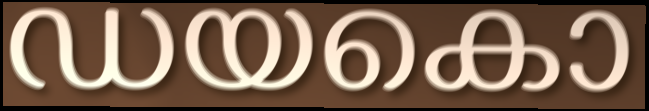
ഡയകൊ